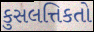
કુસલત્તિકતો